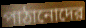
পাঠানোদের